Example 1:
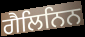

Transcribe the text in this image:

ਗੈਲਿਨਿਨ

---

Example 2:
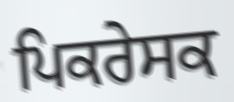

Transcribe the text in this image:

ਪਿਕਰੇਸਕ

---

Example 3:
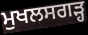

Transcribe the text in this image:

ਮੁਖਲਸਗੜ੍ਹ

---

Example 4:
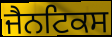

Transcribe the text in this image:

ਜੈਨਟਿਕਸ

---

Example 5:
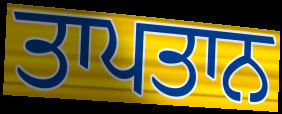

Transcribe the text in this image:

ਤਾਪਤਾਨ